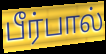
பீர்பால்